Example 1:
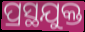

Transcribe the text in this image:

ପ୍ରସ୍ଥଯୁକ୍ତ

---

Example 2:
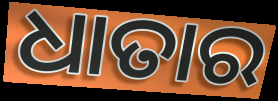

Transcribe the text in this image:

ଧାତାର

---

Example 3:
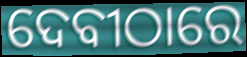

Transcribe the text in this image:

ଦେବୀଠାରେ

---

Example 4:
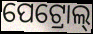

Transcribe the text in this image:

ପେଟ୍ରୋଲ୍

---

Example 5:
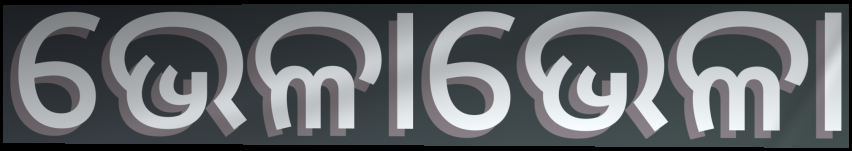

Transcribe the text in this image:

ଭେଳାଭେଳା